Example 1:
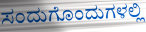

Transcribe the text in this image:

ಸಂದುಗೊಂದುಗಳಲ್ಲಿ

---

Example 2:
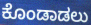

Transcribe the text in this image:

ಕೊಂಡಾಡಲು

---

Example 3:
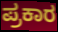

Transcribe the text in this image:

ಪ್ರಕಾರ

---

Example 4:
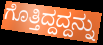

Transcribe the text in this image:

ಗೊತ್ತಿದ್ದದ್ದನ್ನು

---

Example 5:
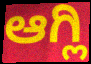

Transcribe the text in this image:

ಆಗ್ಲಿ